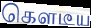
கௌடீய